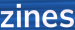
zines